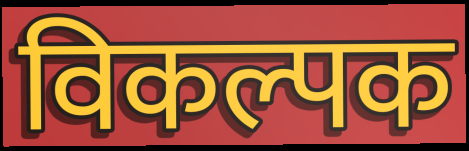
विकल्पक